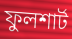
ফুলশার্ট